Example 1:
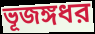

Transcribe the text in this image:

ভূজঙ্গধর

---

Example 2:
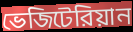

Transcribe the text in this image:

ভেজিটেরিয়ান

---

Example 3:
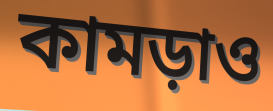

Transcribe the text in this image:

কামড়াও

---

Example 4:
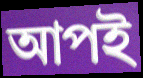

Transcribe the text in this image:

আপই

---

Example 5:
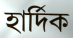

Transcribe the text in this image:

হার্দিক